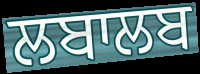
ਲਬਾਲਬ